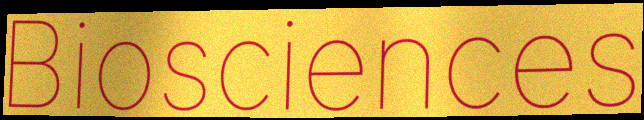
Biosciences